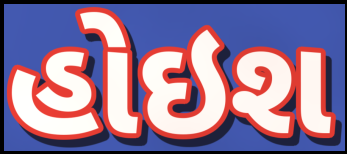
હોઇશ